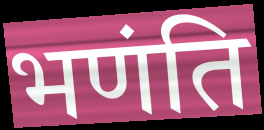
भणंति